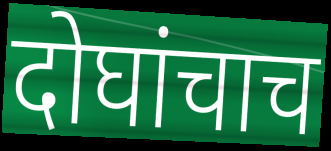
दोघांचाच